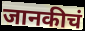
जानकीचं